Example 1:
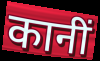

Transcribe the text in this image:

कानीं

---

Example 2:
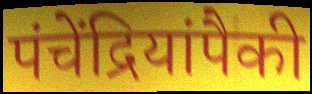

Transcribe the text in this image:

पंचेंद्रियांपैकी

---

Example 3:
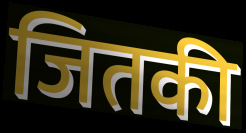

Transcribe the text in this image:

जितकी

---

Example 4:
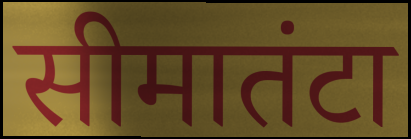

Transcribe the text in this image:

सीमातंटा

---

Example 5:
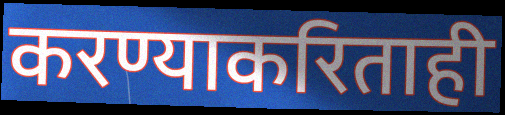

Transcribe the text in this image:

करण्याकरिताही